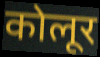
कोलूर